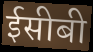
ईसीबी